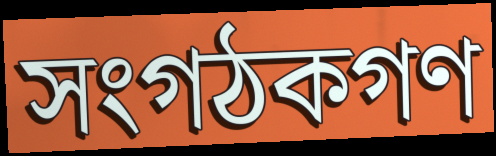
সংগঠকগণ